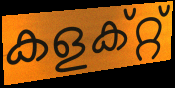
കളക്റ്റ്